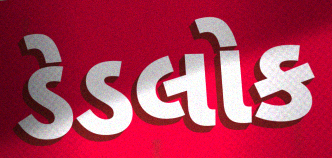
ડેડલોક